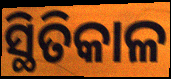
ସ୍ଥିତିକାଳ